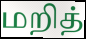
மறித்